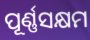
ପୂର୍ଣ୍ଣସକ୍ଷମ